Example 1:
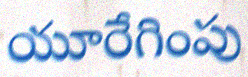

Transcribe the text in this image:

యూరేగింపు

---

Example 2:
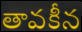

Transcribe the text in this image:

తావకీన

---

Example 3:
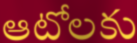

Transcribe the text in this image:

ఆటోలకు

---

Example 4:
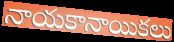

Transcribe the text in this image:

నాయకానాయికలు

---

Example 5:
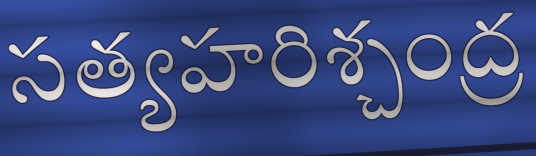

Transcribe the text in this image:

సత్యహరిశ్చంద్ర